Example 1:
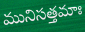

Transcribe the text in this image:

మునిసత్తమాః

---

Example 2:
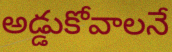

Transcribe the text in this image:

అడ్డుకోవాలనే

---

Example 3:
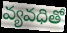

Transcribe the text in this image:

వ్యవధితో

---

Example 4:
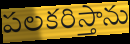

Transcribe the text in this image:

పలకరిస్తాను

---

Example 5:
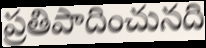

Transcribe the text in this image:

ప్రతిపాదించునది